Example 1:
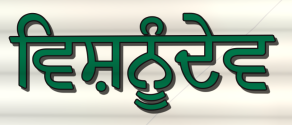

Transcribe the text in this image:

ਵਿਸ਼ਨੂੰਦੇਵ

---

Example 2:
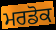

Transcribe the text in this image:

ਮਰਡੋਕ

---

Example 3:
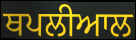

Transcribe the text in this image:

ਥਪਲੀਆਲ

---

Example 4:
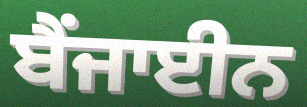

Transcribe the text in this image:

ਬੈਂਜਾਈਨ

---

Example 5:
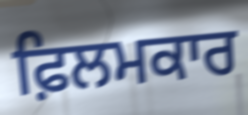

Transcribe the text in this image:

ਫ਼ਿਲਮਕਾਰ